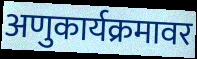
अणुकार्यक्रमावर